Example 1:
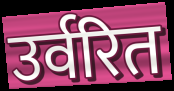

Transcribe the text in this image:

उर्वरित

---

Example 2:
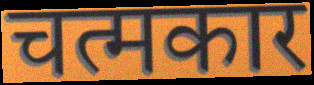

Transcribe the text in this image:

चत्मकार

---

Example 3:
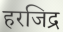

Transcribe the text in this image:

हरजिद्र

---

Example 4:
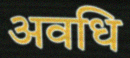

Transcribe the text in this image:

अवधि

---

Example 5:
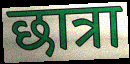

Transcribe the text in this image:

छात्रा